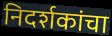
निदर्शकांचा